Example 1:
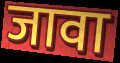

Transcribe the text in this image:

जावा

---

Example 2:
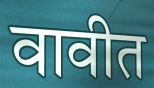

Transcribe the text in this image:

वावीत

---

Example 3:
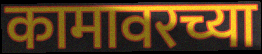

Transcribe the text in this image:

कामावरच्या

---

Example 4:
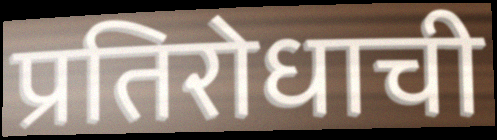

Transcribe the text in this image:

प्रतिरोधाची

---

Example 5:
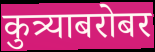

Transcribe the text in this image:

कुत्र्याबरोबर